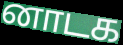
னாடக